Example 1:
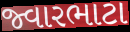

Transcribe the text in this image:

જ્વારભાટા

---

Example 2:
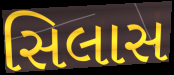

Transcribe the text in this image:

સિલાસ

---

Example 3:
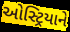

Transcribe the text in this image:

ઓસ્ટ્રિયાને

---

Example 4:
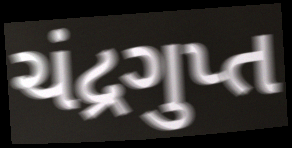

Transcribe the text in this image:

ચંદ્રગુપ્ત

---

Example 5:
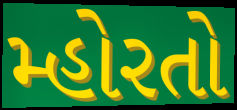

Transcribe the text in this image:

મ્હોરતો